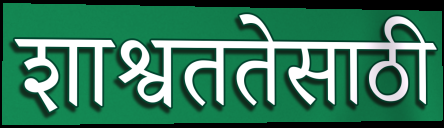
शाश्वततेसाठी